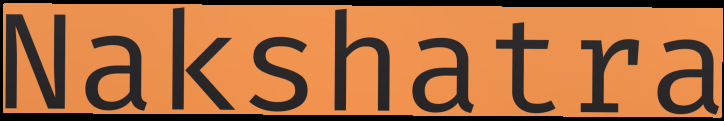
Nakshatra